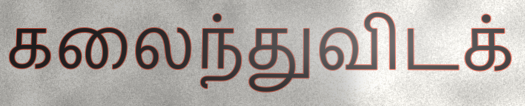
கலைந்துவிடக்